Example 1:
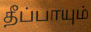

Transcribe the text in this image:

தீப்பாயும்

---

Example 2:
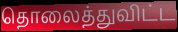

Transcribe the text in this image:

தொலைத்துவிட்ட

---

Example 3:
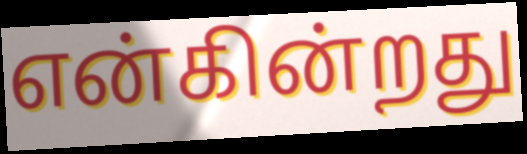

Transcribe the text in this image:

என்கின்றது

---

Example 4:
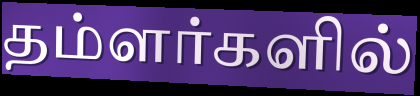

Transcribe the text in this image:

தம்ளர்களில்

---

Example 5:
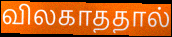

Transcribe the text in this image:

விலகாததால்